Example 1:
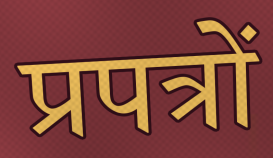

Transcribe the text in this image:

प्रपत्रों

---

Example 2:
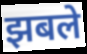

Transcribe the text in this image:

झबले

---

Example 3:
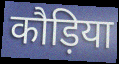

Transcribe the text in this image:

कौड़िया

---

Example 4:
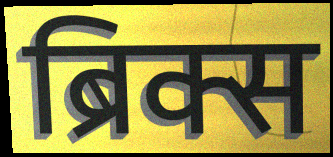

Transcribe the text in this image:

ब्रिक्स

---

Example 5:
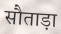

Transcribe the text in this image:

सौताड़ा